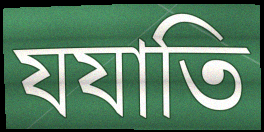
যযাতি